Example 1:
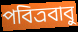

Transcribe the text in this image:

পবিত্রবাবু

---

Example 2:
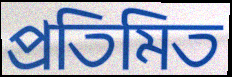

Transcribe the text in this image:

প্রতিমিত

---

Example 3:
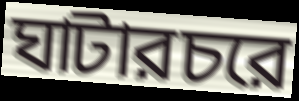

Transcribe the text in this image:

ঘাটারচরে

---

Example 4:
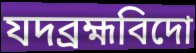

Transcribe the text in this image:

যদব্রহ্মবিদো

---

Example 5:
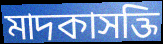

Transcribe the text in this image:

মাদকাসক্তি